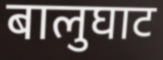
बालुघाट